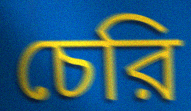
চেরি